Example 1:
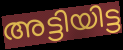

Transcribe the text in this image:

അട്ടിയിട്ട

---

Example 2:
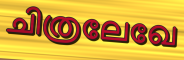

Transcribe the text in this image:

ചിത്രലേഖേ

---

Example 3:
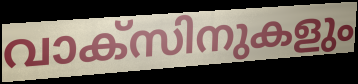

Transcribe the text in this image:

വാക്സിനുകളും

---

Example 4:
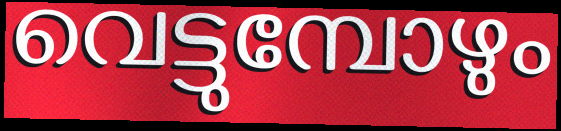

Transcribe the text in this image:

വെട്ടുമ്പോഴും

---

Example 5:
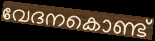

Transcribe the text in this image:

വേദനകൊണ്ട്